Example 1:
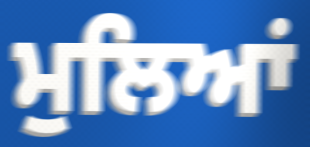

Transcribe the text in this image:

ਮੁਲਿਆਂ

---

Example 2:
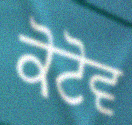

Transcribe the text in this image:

ਕੋਟੋਵ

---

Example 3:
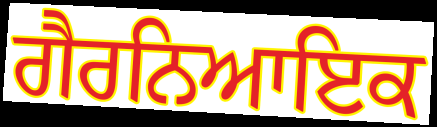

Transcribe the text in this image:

ਗੈਰਨਿਆਇਕ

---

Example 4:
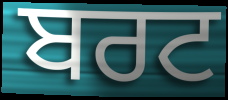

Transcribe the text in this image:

ਬਰਟ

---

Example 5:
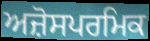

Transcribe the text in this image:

ਅਜ਼ੋਸਪਰਮਿਕ